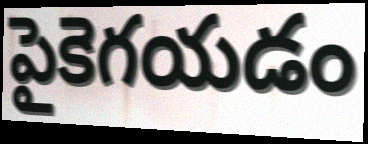
పైకెగయడం